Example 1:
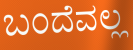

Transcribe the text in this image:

ಬಂದೆವಲ್ಲ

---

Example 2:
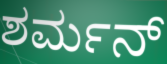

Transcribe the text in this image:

ಶರ್ಮನ್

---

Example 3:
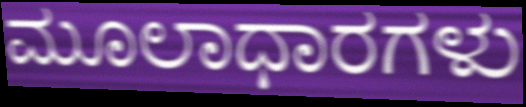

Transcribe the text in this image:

ಮೂಲಾಧಾರಗಳು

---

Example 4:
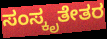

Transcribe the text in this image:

ಸಂಸ್ಕೃತೇತರ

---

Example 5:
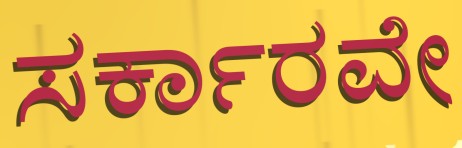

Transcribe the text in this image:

ಸರ್ಕಾರವೇ